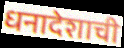
धनादेशाची